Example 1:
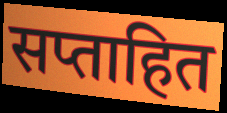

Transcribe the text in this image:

सप्ताहित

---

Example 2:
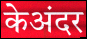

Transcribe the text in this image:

केअंदर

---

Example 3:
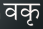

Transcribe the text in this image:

वकृ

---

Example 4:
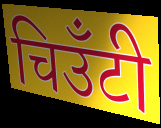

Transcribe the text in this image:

चिउँटी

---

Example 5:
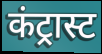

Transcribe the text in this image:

कंट्रास्ट